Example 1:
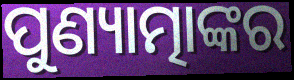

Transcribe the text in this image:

ପୁଣ୍ୟାତ୍ମାଙ୍କର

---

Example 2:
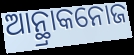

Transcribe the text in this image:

ଆନ୍ଥ୍ରାକନୋଜ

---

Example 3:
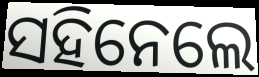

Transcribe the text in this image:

ସହିନେଲେ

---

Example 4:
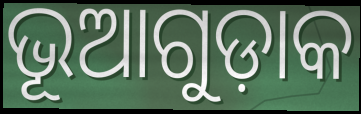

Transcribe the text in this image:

ଭୂଆଗୁଡ଼ାକ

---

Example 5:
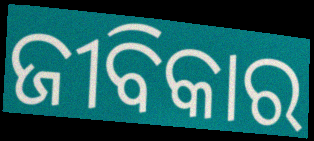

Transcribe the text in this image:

ଜୀବିକାର